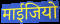
माईजियो